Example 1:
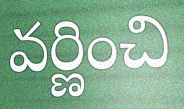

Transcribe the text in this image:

వర్ణించి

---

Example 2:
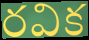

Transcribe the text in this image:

రవిక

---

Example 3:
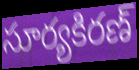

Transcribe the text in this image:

సూర్యకిరణ్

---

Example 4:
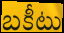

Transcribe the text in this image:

బకీటు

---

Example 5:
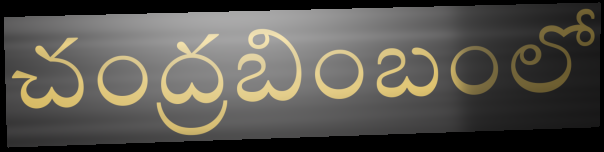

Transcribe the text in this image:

చంద్రబింబంలో